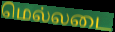
மெல்லடை